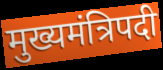
मुख्यमंत्रिपदी